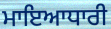
ਮਾਇਆਧਾਰੀ